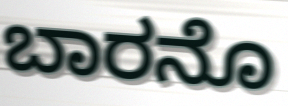
ಬಾರನೊ